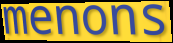
menons